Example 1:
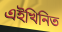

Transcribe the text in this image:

এইখিনিত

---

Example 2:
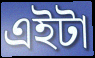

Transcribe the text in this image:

এইটা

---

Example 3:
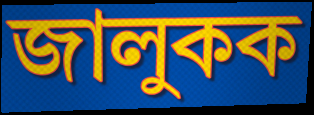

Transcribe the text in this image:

জালুকক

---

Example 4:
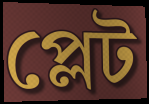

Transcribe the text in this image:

প্লেট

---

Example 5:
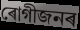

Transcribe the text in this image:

ৰোগীজনৰ